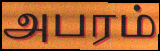
அபரம்